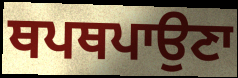
ਥਪਥਪਾਉਣਾ